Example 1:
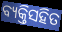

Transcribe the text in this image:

ବ୍ୟକ୍ତିସହିତ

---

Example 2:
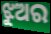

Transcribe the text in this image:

ଝୁଅର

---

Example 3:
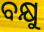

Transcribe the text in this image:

ବକ୍ଷୁ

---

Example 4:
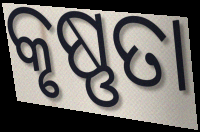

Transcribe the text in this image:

କୃଷ୍ଣତା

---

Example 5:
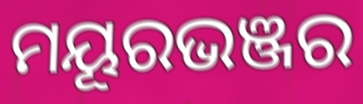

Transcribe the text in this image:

ମୟୂରଭଞ୍ଜର